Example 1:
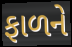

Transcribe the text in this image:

ફાળને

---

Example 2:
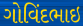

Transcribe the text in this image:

ગોવિંદભાઇ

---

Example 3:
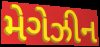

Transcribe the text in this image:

મેગેઝીન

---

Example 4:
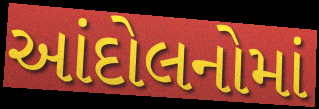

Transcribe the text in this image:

આંદોલનોમાં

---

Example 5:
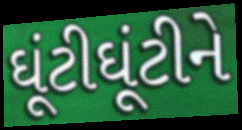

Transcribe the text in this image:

ઘૂંટીઘૂંટીને